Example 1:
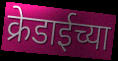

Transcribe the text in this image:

क्रेडाईच्या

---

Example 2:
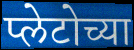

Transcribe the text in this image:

प्लेटोच्या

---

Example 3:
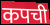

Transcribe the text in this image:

कपची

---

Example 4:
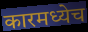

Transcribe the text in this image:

कारमध्येच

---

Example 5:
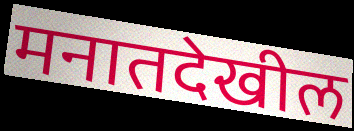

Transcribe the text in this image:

मनातदेखील